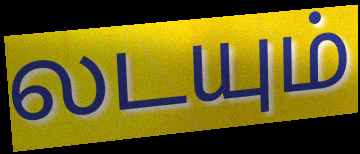
லடயும்